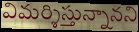
విమర్శిస్తున్నానని